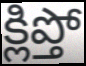
క్లిప్తో